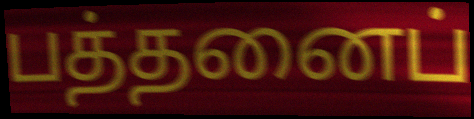
பத்தனைப்